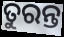
ତୁରନ୍ତ